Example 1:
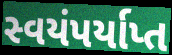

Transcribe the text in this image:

સ્વયંપર્યાપ્ત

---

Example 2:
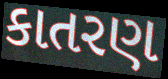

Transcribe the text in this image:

કાતરણ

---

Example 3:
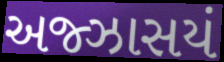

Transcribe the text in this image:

અજ્ઝાસયં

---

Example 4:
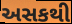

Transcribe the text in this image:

અસકથી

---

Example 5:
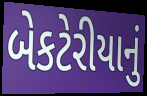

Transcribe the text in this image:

બેકટેરીયાનું